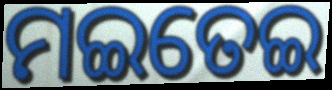
ମଇତେଇ